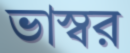
ভাস্বর